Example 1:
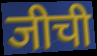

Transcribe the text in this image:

जीची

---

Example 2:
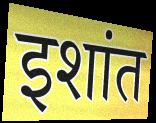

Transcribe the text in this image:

इशांत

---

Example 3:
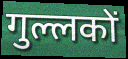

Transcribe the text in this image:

गुल्लकों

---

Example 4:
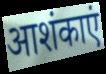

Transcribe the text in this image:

आशंकाएं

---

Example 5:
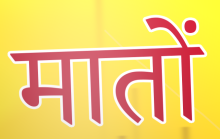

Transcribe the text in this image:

मातों